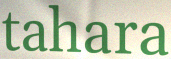
tahara